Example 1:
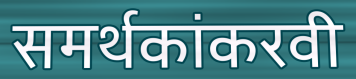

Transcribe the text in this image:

समर्थकांकरवी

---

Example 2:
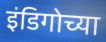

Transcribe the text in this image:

इंडिगोच्या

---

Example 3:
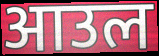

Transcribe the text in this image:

आउल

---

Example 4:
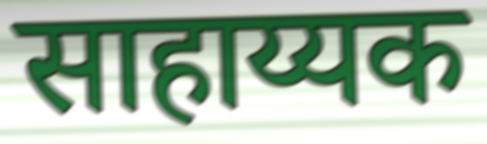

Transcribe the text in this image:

साहाय्यक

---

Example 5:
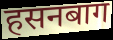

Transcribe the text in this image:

हसनबाग